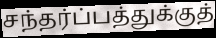
சந்தர்ப்பத்துக்குத்